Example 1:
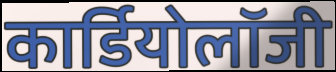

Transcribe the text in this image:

कार्डियोलॉजी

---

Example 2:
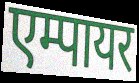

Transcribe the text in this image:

एम्पायर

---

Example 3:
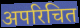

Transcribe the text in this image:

अपरिचित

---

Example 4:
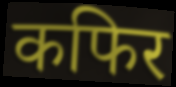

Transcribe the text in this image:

कफिर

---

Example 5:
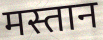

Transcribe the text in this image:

मस्तान